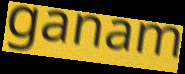
ganam